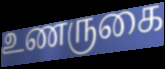
உணருகை